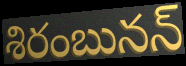
శిరంబునన్